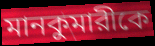
মানকুমারীকে